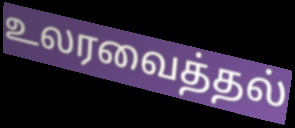
உலரவைத்தல்